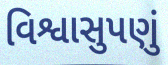
વિશ્વાસુપણું